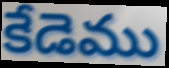
కేడెము